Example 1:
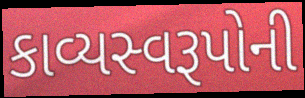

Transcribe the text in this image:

કાવ્યસ્વરૂપોની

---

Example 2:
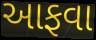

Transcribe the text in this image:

આફવા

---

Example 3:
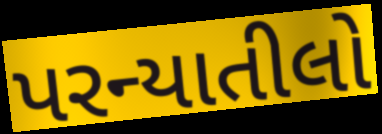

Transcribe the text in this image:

પરન્યાતીલો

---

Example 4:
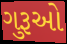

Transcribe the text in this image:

ગુરૂઓ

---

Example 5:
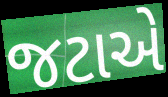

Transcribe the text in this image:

જટાએ